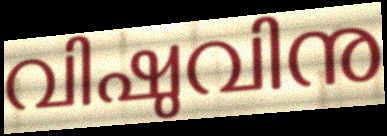
വിഷുവിനു